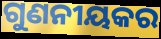
ଗୁଣନୀୟକର